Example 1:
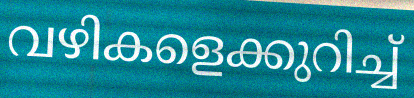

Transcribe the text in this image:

വഴികളെക്കുറിച്ച്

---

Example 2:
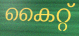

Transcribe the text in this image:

കൈറ്റ്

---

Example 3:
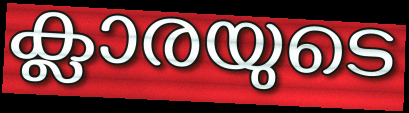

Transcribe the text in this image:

ക്ലാരയുടെ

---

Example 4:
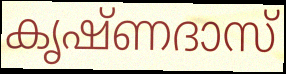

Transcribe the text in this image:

കൃഷ്ണദാസ്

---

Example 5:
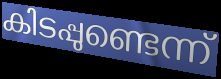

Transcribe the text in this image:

കിടപ്പുണ്ടെന്ന്